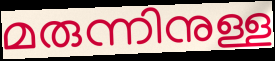
മരുന്നിനുള്ള